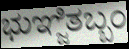
ಭುಞ್ಜಿತಬ್ಬಂ